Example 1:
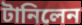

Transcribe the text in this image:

টানিলেন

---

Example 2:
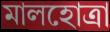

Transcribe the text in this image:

মালহোত্রা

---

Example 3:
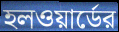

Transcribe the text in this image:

হলওয়ার্ডের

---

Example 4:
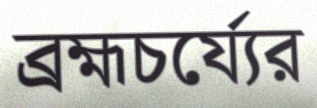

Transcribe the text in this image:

ব্রহ্মচর্য্যের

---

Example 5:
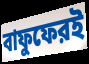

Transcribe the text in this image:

বাফুফেরই